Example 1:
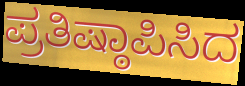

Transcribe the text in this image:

ಪ್ರತಿಷ್ಠಾಪಿಸಿದ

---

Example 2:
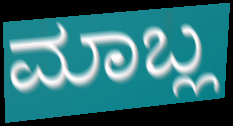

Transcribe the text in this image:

ಮಾಬ್ಲ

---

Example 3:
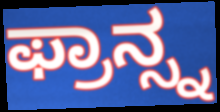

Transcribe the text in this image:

ಫ್ರಾನ್ಸ್ನ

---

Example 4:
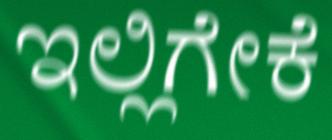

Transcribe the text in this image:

ಇಲ್ಲಿಗೇಕೆ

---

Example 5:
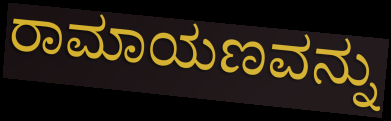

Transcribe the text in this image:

ರಾಮಾಯಣವನ್ನು